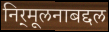
निर्मूलनाबद्दल